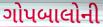
ગોપબાલોની